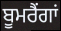
ਬੂਮਰੈਂਗਾਂ